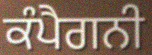
ਕੰਪੈਗਨੀ